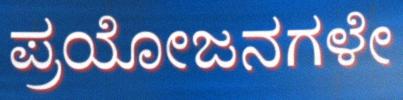
ಪ್ರಯೋಜನಗಳೇ